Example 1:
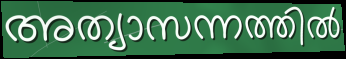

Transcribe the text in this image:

അത്യാസന്നത്തിൽ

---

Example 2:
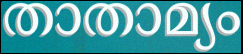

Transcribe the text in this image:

താതാമ്യം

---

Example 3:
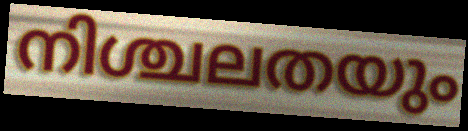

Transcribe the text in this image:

നിശ്ചലതയും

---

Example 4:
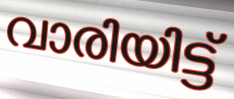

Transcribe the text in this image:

വാരിയിട്ട്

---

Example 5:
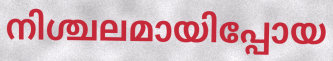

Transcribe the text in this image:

നിശ്ചലമായിപ്പോയ